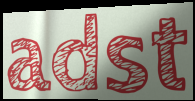
adst